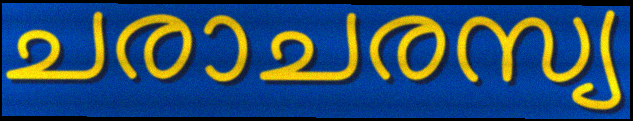
ചരാചരസ്യ